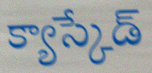
క్యాస్కేడ్